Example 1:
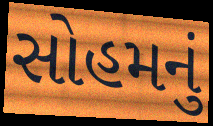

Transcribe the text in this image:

સોહમનું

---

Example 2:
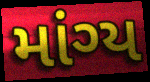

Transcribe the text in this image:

માંગ્ય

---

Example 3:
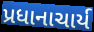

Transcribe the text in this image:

પ્રધાનાચાર્ય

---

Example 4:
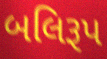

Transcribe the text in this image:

બલિરૂપ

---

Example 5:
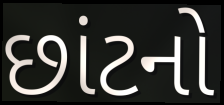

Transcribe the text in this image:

છાંટનો